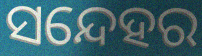
ସନ୍ଦେହର